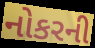
નોકરની